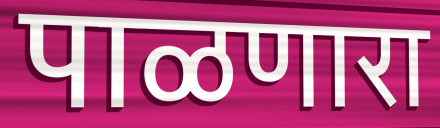
पाळणारा